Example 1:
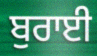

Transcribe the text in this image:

ਬੁਰਾਈ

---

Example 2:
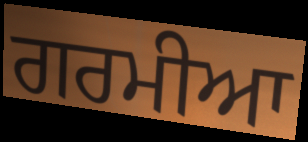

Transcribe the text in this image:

ਗਰਮੀਆ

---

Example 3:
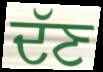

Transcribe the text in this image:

ਦੱਣ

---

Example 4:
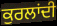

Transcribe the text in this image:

ਕੁਰਲਾਂਦੀ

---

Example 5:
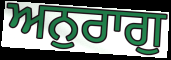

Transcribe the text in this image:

ਅਨੁਰਾਗੁ